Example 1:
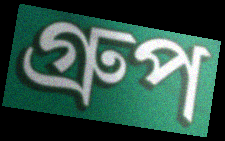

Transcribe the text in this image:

গ্রুপ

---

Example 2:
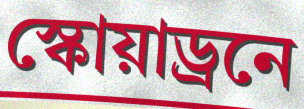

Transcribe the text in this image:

স্কোয়াড্রনে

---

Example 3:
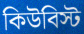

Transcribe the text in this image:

কিউবিস্ট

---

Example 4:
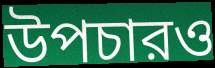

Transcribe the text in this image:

উপচারও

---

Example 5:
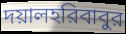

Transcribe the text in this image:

দয়ালহরিবাবুর